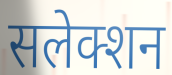
सलेक्शन